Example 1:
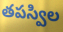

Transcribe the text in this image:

తపస్విల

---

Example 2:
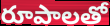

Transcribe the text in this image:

రూపాలతో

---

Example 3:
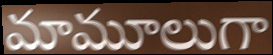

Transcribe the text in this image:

మామూలుగా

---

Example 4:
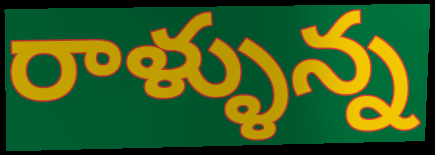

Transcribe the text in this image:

రాళ్ళున్న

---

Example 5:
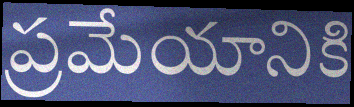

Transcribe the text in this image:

ప్రమేయానికి